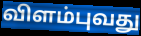
விளம்புவது